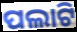
ପଲାଟି